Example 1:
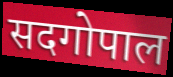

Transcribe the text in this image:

सदगोपाल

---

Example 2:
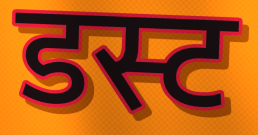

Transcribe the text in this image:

डस्ट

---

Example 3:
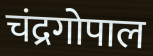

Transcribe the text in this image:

चंद्रगोपाल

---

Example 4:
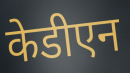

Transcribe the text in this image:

केडीएन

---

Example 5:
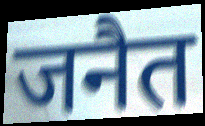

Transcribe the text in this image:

जनैत